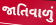
જાતિવાળું